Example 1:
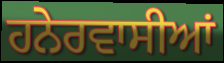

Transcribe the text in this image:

ਹਨੇਰਵਾਸੀਆਂ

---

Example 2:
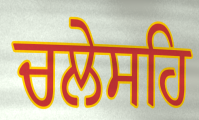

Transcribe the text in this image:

ਚਲੇਸਹਿ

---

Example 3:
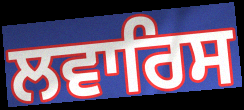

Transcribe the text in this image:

ਲਵਾਰਿਸ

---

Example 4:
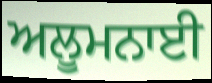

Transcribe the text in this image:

ਅਲੂਮਨਾਈ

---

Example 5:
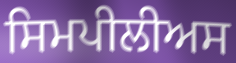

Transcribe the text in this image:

ਸਿਮਪੀਲੀਅਸ